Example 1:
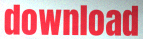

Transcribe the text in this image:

download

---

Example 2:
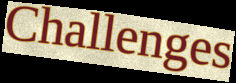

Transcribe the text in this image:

Challenges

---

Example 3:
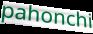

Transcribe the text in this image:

pahonchi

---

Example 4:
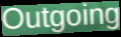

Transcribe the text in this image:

Outgoing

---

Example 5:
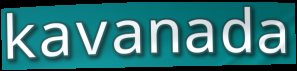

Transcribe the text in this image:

kavanada